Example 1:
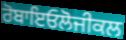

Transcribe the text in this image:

ਰੋਬਾਇਓਲੋਜੀਕਲ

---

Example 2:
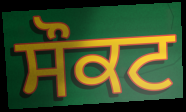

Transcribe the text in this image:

ਸੌਕਟ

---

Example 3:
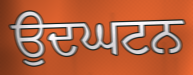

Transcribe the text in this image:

ਉਦਘਟਨ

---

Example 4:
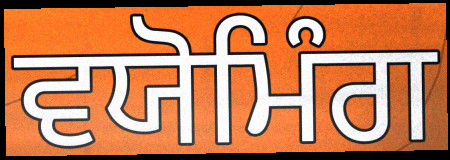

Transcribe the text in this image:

ਵਯੋਮਿੰਗ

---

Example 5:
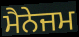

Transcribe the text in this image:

ਮੈਨੇਜਮ